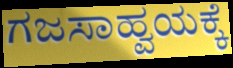
ಗಜಸಾಹ್ವಯಕ್ಕೆ